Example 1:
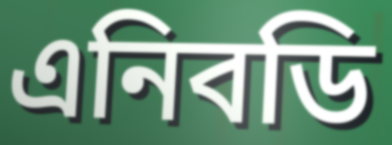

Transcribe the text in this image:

এনিবডি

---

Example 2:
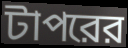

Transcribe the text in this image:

টাপরের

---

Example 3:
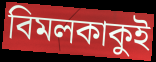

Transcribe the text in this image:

বিমলকাকুই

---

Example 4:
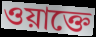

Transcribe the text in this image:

ওয়াক্তে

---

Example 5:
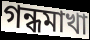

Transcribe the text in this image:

গন্ধমাখা